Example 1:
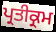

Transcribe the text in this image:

ਪ੍ਰਤੀਕ੍ਰਮ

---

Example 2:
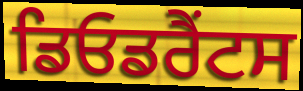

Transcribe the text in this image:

ਡਿਓਡਰੈਂਟਸ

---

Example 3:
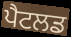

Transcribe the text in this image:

ਪੈਟਲਡ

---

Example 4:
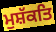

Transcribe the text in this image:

ਮੁਸ਼ੱਕਤਿ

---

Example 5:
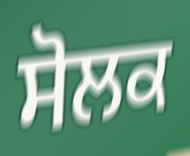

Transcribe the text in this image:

ਸੋਲਕ